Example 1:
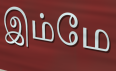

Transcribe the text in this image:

இம்மே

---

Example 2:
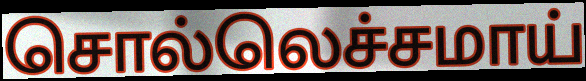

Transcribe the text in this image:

சொல்லெச்சமாய்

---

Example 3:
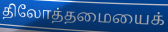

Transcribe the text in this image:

திலோத்தமையைக்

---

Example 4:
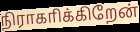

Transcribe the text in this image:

நிராகரிக்கிறேன்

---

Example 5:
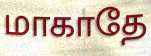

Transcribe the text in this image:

மாகாதே